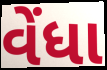
વેંધા